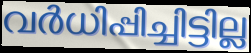
വർധിപ്പിച്ചിട്ടില്ല